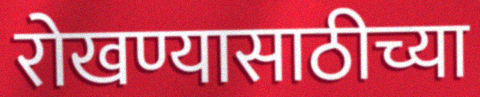
रोखण्यासाठीच्या